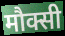
मौक्सी